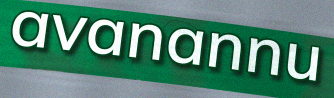
avanannu